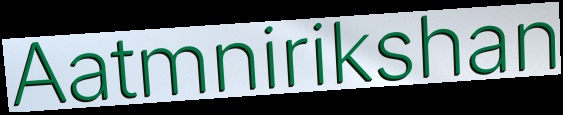
Aatmnirikshan